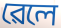
ৱেলে